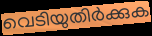
വെടിയുതിർക്കുക